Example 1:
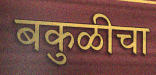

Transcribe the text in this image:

बकुळीचा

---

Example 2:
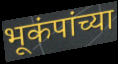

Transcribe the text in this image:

भूकंपांच्या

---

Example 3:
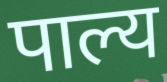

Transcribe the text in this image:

पाल्य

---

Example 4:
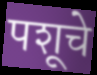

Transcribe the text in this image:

पशूचे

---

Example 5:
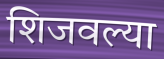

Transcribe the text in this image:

शिजवल्या